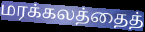
மரக்கலத்தைத்